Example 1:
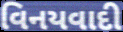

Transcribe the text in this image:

વિનયવાદી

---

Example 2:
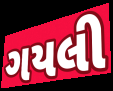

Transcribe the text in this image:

ગયલી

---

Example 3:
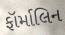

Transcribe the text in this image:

ફૉર્માલિન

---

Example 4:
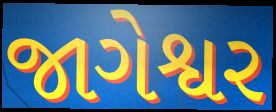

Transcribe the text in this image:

જાગેશ્વર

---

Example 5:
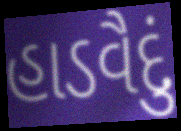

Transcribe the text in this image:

હાડવૈદું